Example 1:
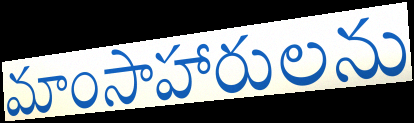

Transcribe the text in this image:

మాంసాహారులను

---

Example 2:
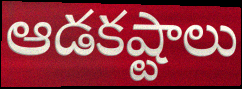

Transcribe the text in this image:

ఆడకష్టాలు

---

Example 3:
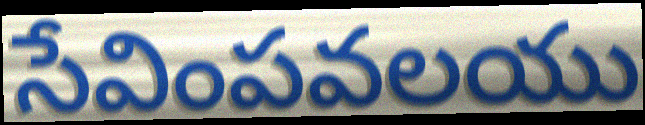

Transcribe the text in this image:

సేవింపవలయు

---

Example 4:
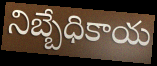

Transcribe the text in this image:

నిబ్బేధికాయ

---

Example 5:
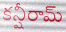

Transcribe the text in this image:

కన్షీరామ్